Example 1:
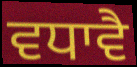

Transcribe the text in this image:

ਵਧਾਵੈ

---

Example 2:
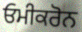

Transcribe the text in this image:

ਓਮੀਕਰੋਨ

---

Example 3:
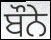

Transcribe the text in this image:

ਬੌਨੇ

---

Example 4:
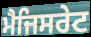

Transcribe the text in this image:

ਮੈਜਿਸਰੇਟ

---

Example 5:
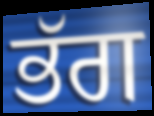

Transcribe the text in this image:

ਭੱਗ